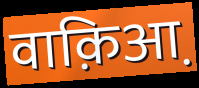
वाक़िआ़